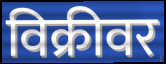
विक्रीवर